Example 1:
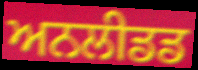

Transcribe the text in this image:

ਅਨਲੀਡਡ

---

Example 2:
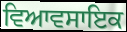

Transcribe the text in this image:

ਵਿਆਵਸਾਇਕ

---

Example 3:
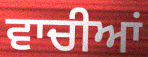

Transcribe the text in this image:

ਵਾਚੀਆਂ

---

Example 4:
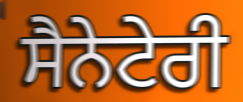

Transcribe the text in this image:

ਸੈਨੇਟੇਰੀ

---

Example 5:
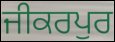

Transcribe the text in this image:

ਜੀਕਰਪੁਰ